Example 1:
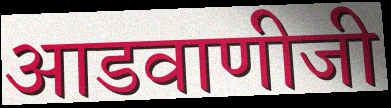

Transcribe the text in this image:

आडवाणीजी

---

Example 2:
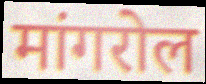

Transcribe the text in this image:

मांगरोल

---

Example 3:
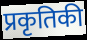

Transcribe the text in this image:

प्रकृतिकी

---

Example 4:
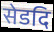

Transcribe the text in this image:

सेडदि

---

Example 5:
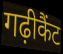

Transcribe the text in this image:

गढ़ीकैंट